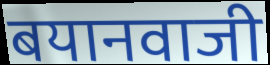
बयानवाजी